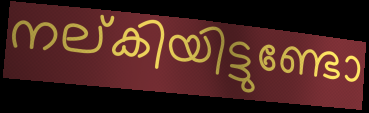
നല്കിയിട്ടുണ്ടോ